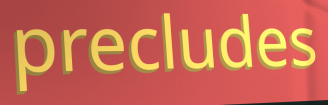
precludes